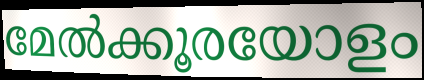
മേൽക്കൂരയോളം